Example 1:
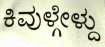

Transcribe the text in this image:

ಕಿವುಳ್ಗೇಳ್ದು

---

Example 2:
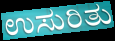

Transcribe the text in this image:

ಉಸುರಿತು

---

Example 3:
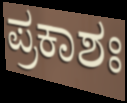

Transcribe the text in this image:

ಪ್ರಕಾಶಃ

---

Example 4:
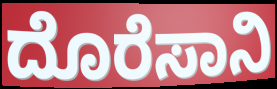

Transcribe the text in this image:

ದೊರೆಸಾನಿ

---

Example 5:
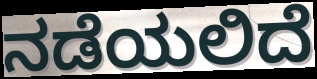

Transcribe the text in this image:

ನಡೆಯಲಿದೆ